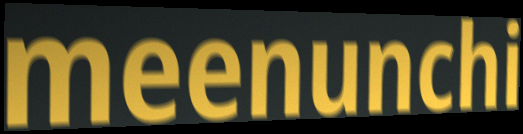
meenunchi